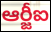
ఆర్జీఐ